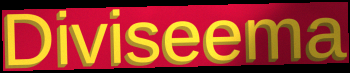
Diviseema